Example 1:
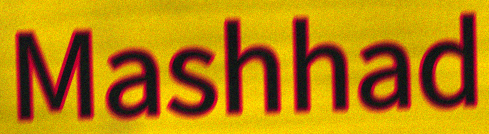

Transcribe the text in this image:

Mashhad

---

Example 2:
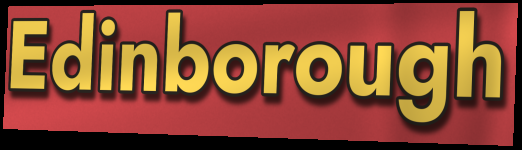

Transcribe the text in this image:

Edinborough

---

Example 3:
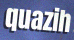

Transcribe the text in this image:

quazih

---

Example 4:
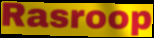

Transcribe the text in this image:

Rasroop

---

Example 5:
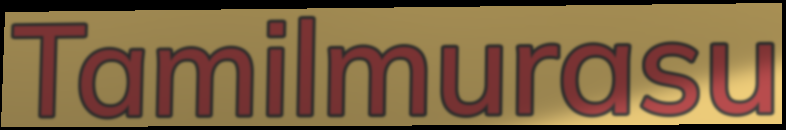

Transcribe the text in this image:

Tamilmurasu